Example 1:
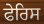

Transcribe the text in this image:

ਫੇਰਿਸ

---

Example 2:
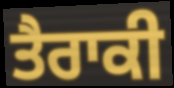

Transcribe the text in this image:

ਤੈਰਾਕੀ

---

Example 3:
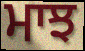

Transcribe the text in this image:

ਮਾਝ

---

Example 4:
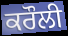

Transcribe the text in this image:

ਕਰੌਲੀ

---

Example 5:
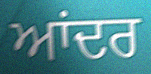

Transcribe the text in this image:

ਆਂਦਰ